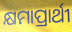
କ୍ଷମାପ୍ରାର୍ଥୀ